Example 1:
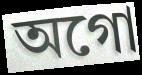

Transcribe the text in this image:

অগো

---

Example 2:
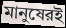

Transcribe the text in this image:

মানুষেরই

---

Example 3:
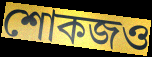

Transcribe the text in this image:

শোকজও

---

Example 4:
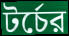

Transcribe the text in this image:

টর্চের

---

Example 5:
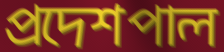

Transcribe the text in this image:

প্রদেশপাল